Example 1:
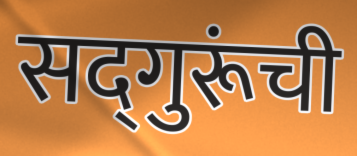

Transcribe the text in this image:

सद्‌गुरूंची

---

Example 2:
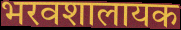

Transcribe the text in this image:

भरवशालायक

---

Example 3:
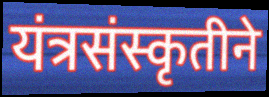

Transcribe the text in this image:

यंत्रसंस्कृतीने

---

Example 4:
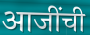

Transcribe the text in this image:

आजींची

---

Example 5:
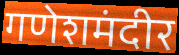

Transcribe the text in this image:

गणेशमंदीर